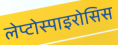
लेप्टोस्पाइरोसिस